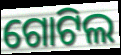
ଗୋଟିଲ